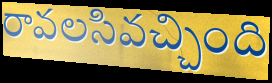
రావలసివచ్చింది